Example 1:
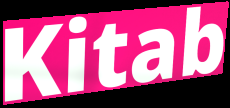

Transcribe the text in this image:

Kitab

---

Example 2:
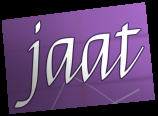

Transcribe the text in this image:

jaat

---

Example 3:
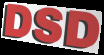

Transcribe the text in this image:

DSD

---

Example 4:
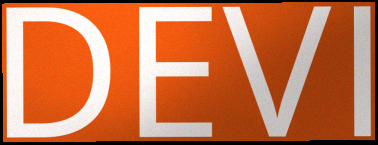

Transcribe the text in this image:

DEVI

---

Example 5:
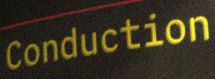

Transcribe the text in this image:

Conduction